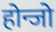
होन्जो